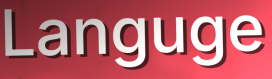
Languge